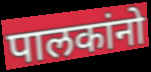
पालकांनो